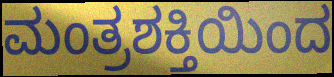
ಮಂತ್ರಶಕ್ತಿಯಿಂದ